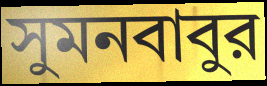
সুমনবাবুর